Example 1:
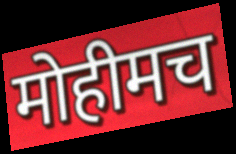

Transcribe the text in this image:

मोहीमच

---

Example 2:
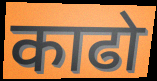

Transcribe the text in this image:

काढो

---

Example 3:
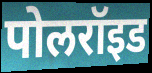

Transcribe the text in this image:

पोलरॉइड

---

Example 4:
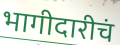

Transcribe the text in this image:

भागीदारीचं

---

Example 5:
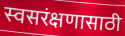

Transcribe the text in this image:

स्वसरंक्षणासाठी